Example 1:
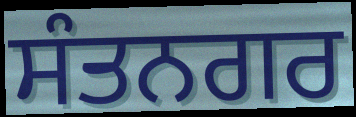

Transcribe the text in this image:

ਸੰਤਨਗਰ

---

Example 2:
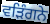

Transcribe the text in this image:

ਵੜਿੰਗਨੇ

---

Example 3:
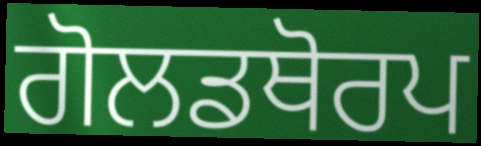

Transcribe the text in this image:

ਗੋਲਡਥੋਰਪ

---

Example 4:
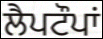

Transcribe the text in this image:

ਲੈਪਟੌਪਾਂ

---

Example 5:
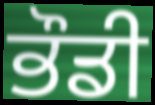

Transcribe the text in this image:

ਭੌਡੀ